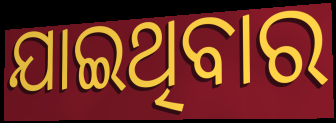
ଯାଇଥିବାର